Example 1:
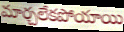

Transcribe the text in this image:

మార్చలేకపోయాయి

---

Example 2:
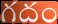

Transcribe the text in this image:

గదం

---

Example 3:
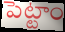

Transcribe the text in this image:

పెట్టాం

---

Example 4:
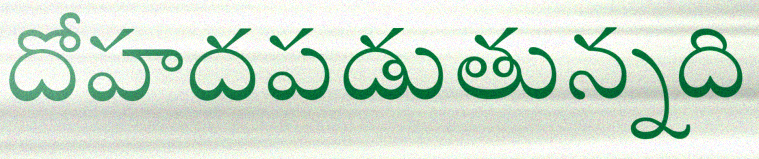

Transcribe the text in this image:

దోహదపడుతున్నది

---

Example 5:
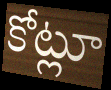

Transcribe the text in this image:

కోట్లూ